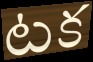
టక